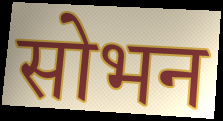
सोभन